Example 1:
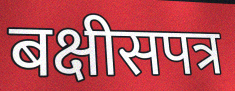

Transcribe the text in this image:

बक्षीसपत्र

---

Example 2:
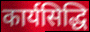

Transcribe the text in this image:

कार्यसिद्धि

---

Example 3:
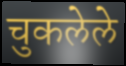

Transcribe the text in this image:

चुकलेले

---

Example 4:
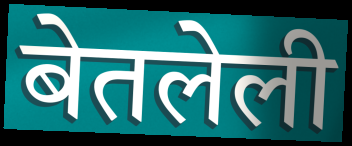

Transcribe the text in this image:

बेतलेली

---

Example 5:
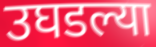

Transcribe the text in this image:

उघडल्या